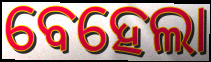
ବେହେଲା